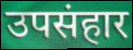
उपसंहार